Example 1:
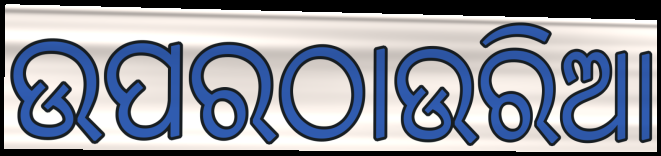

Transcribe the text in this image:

ଉପରଠାଉରିଆ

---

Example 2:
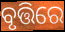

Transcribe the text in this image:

ବୃତ୍ତିରେ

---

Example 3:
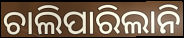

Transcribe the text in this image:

ଚାଲିପାରିଲାନି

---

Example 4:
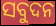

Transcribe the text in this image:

ସବୁଦନ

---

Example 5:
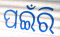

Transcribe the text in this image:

ପଇଁରି